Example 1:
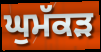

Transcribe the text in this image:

ਘੁਮੱਕੜ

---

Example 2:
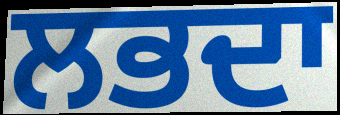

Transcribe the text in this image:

ਲਭਦਾ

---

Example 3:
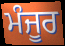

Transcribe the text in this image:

ਮੰਜੂਰ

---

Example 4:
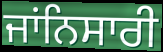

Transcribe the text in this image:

ਜਾਂਨਿਸਾਰੀ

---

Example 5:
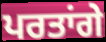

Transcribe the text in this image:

ਪਰਤਾਂਗੇ